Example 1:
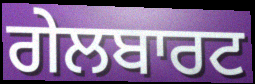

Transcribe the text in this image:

ਗੇਲਬਾਰਟ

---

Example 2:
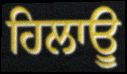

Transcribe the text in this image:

ਹਿਲਾਊ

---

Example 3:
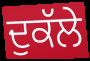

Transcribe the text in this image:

ਦੁਕੱਲੇ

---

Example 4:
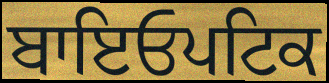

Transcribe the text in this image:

ਬਾਇਓਪਟਿਕ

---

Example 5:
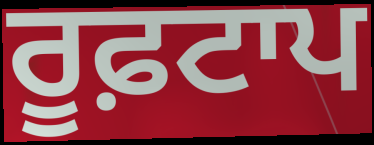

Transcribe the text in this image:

ਰੂਫ਼ਟਾਪ